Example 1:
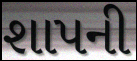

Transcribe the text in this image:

શાપની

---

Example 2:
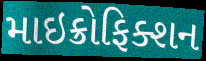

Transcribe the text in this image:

માઇક્રોફિક્શન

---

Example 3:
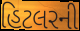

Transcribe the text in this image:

હિટલરની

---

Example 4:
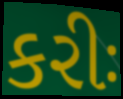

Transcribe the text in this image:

કરીઃ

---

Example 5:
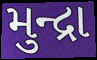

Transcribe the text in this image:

મુન્દ્રા